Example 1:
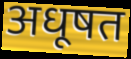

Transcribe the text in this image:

अधूषत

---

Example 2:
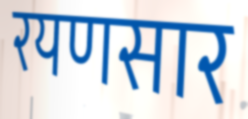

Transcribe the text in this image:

रयणसार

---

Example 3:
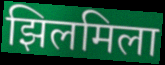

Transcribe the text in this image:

झिलमिला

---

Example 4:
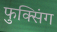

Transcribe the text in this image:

फुक्सिंग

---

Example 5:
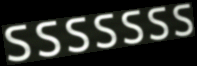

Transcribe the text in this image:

ऽऽऽऽऽऽऽ